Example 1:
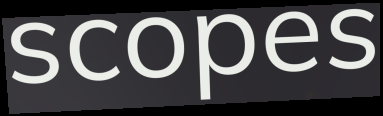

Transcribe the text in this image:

scopes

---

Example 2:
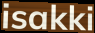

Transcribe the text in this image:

isakki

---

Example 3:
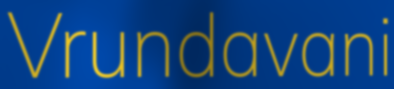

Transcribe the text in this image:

Vrundavani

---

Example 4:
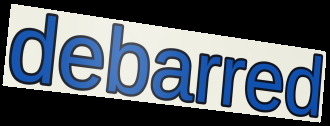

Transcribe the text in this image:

debarred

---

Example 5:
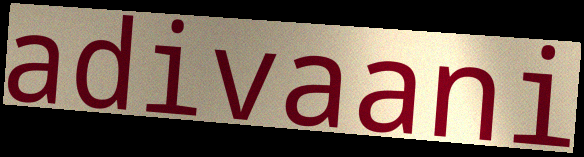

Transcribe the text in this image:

adivaani